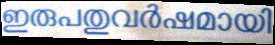
ഇരുപതുവർഷമായി